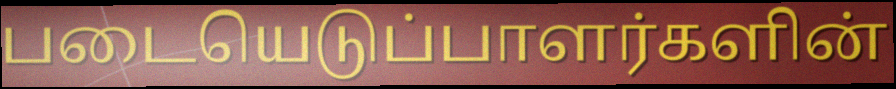
படையெடுப்பாளர்களின்